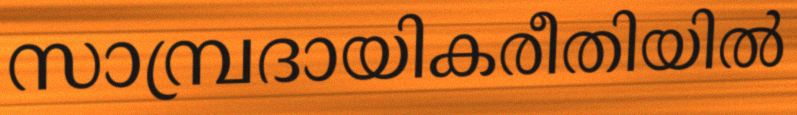
സാമ്പ്രദായികരീതിയിൽ